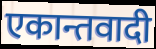
एकान्तवादी